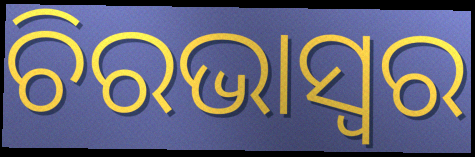
ଚିରଭାସ୍ଵର